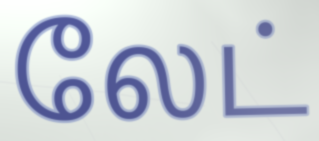
லேட்